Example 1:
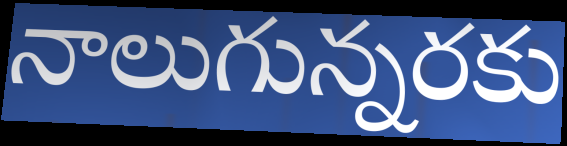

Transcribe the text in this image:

నాలుగున్నరకు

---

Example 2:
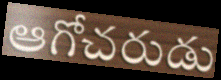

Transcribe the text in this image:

ఆగోచరుడు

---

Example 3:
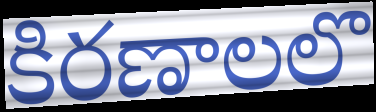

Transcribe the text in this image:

కిరణాలలొ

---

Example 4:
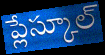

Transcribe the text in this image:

ప్లేస్కూల్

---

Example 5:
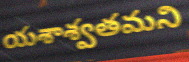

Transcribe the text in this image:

యశాశ్వతమని